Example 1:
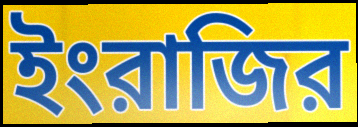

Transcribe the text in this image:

ইংরাজির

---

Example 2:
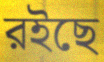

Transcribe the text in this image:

রইছে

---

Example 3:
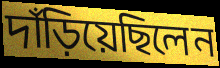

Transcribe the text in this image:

দাঁড়িয়েছিলেন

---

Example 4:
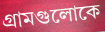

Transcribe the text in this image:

গ্রামগুলোকে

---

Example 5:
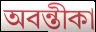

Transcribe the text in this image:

অবন্তীকা